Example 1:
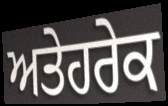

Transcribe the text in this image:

ਅਤੇਹਰੇਕ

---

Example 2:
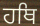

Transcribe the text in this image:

ਹਥਿ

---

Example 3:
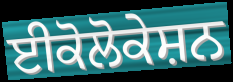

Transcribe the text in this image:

ਈਕੋਲੋਕੇਸ਼ਨ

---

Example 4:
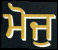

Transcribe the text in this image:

ਮੋਜੁ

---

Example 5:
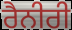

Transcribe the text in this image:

ਰੈਨੀਰੀ